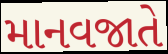
માનવજાતે